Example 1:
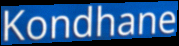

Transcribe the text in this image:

Kondhane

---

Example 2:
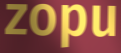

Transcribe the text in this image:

zopu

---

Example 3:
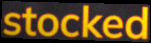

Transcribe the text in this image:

stocked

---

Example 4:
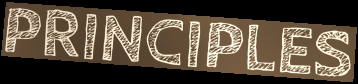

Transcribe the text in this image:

PRINCIPLES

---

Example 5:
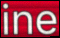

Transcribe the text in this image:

ine